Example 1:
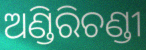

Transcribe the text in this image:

ଅଣ୍ଡିରିଚଣ୍ଡୀ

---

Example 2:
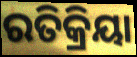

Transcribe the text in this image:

ରତିକ୍ରିୟା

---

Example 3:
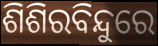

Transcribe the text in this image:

ଶିଶିରବିନ୍ଦୁରେ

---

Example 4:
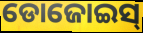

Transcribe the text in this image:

ଡୋଜୋଇସ୍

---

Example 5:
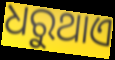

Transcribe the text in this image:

ଧରୁଥାଏ